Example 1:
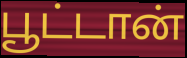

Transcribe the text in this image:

பூட்டான்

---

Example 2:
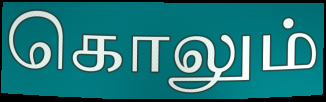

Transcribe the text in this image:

கொலும்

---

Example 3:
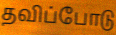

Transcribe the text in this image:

தவிப்போடு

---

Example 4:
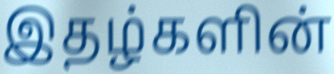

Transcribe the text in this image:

இதழ்களின்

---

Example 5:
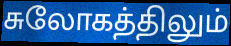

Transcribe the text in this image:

சுலோகத்திலும்